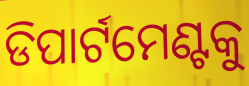
ଡିପାର୍ଟମେଣ୍ଟକୁ